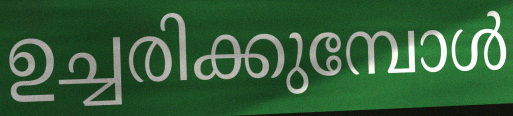
ഉച്ചരിക്കുമ്പോൾ